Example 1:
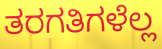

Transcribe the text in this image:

ತರಗತಿಗಳೆಲ್ಲ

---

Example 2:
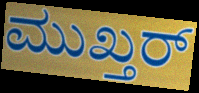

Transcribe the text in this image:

ಮುಖ್ತರ್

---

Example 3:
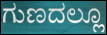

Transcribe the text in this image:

ಗುಣದಲ್ಲೂ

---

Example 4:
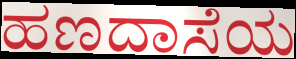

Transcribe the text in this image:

ಹಣದಾಸೆಯ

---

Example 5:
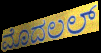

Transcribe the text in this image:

ಮೊದಲಲ್